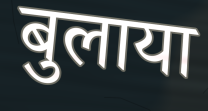
बुलाया